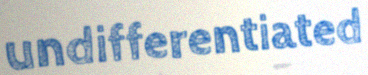
undifferentiated